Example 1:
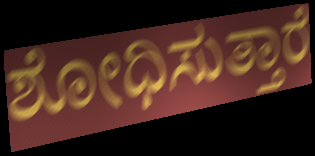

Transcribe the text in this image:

ಶೋಧಿಸುತ್ತಾರೆ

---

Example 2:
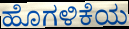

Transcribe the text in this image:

ಹೊಗಳಿಕೆಯ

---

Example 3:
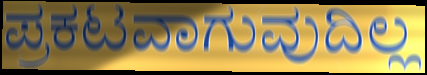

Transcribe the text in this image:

ಪ್ರಕಟವಾಗುವುದಿಲ್ಲ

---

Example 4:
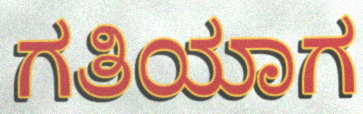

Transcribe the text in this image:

ಗತಿಯಾಗ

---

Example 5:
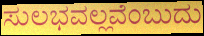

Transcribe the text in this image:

ಸುಲಭವಲ್ಲವೆಂಬುದು